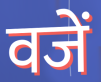
वजें